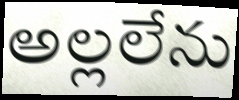
అల్లలేను